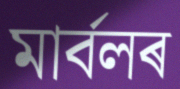
মাৰ্বলৰ